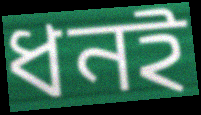
ধনই